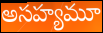
అసహ్యమూ